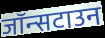
जॉन्सटाउन